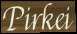
Pirkei